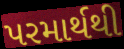
પરમાર્થથી